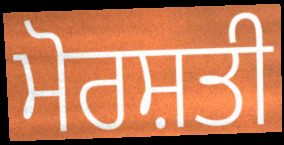
ਮੋਰਸ਼ਤੀ